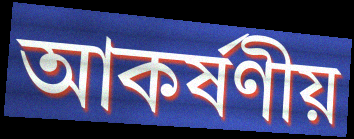
আকৰ্ষণীয়